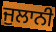
ਜੁਲਾਨੀ